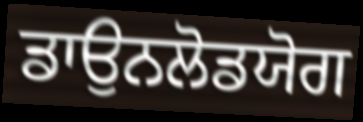
ਡਾਉਨਲੋਡਯੋਗ